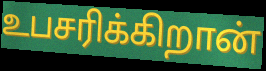
உபசரிக்கிறான்